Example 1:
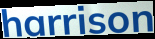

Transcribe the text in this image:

harrison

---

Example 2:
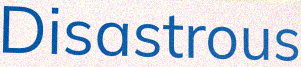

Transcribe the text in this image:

Disastrous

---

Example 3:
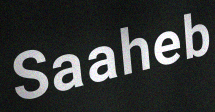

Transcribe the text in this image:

Saaheb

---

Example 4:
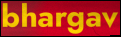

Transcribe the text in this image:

bhargav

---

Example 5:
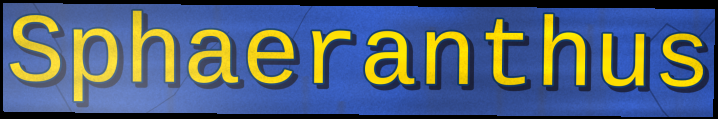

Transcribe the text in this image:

Sphaeranthus